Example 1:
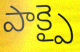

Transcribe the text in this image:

పాక్పై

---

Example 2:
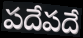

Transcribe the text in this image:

పదేపదే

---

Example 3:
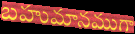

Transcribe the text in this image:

బహుమానముగా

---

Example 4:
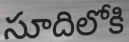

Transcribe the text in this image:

సూదిలోకి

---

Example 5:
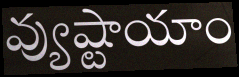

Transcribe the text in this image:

వ్యుష్టాయాం